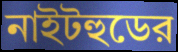
নাইটহুডের